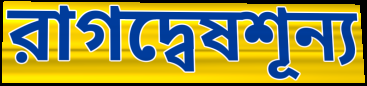
রাগদ্বেষশূন্য